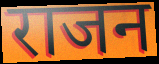
राजन